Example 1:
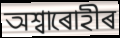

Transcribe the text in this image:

অশ্বাৰোহীৰ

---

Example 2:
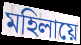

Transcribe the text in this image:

মহিলায়ে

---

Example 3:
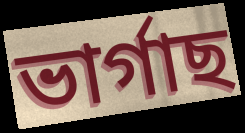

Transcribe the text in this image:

ভাৰ্গাছ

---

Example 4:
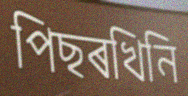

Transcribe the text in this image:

পিছৰখিনি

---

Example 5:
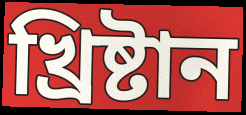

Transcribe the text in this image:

খ্ৰিষ্টান